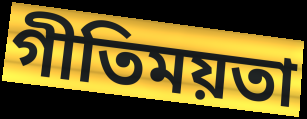
গীতিময়তা